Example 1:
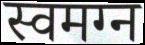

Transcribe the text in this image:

स्वमग्न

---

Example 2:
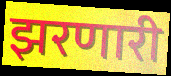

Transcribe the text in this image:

झरणारी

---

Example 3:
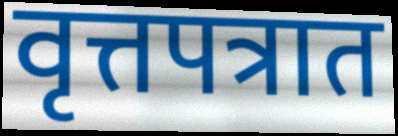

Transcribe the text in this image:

वृत्तपत्रात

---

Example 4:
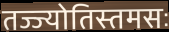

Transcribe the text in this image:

तज्ज्योतिस्तमसः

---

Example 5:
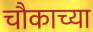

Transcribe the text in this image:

चौकाच्या